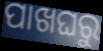
ପାଖଘରୁ